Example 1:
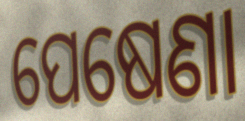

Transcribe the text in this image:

ପେଷେଣା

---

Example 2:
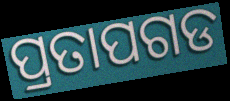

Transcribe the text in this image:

ପ୍ରତାପଗଡ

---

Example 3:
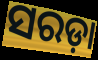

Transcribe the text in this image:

ସରଡ଼ା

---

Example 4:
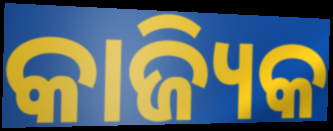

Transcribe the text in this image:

କାଜ୍ୟିକ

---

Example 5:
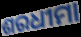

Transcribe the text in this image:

ଶରଧୀମା